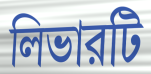
লিভারটি